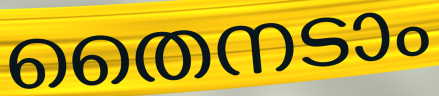
തൈനടാം